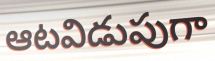
ఆటవిడుపుగా